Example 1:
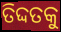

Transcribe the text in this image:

ତିଦ୍ଦତକୁ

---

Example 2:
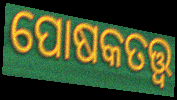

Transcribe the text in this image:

ପୋଷକତତ୍ତ୍ବ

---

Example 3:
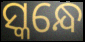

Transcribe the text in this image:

ସ୍କନ୍ଧେ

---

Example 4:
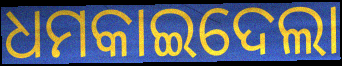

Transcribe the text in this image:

ଧମକାଇଦେଲା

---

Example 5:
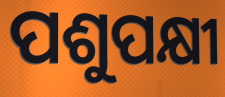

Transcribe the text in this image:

ପଶୁପକ୍ଷୀ